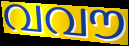
വവൗ